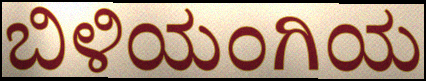
ಬಿಳಿಯಂಗಿಯ